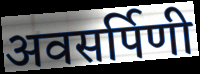
अवसर्पिणी